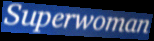
Superwoman